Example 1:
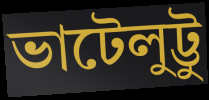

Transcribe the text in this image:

ভাটেলুট্টু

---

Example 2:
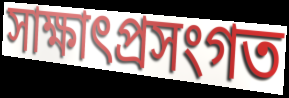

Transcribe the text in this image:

সাক্ষাৎপ্ৰসংগত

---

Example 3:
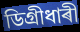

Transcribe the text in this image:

ডিগ্ৰীধাৰী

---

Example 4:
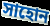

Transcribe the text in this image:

সাহোন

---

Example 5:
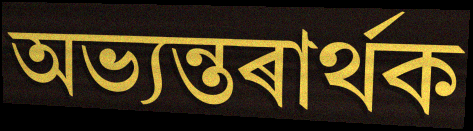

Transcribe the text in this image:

অভ্যন্তৰাৰ্থক